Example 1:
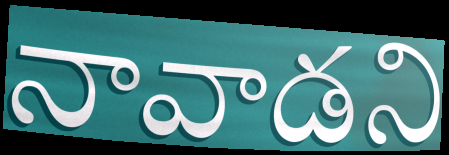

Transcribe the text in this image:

నావాడని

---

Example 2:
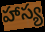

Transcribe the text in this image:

హాస్య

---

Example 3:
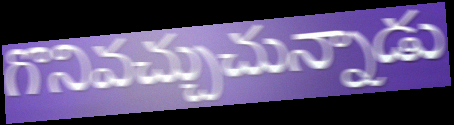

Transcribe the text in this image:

గొనివచ్చుచున్నాడు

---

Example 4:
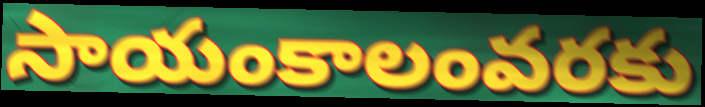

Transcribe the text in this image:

సాయంకాలంవరకు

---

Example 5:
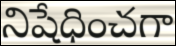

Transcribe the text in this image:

నిషేధించగా